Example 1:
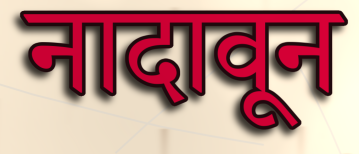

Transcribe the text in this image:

नादावून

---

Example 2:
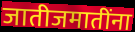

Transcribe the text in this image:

जातीजमातींना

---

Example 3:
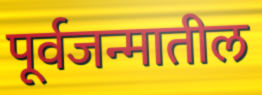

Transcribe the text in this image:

पूर्वजन्मातील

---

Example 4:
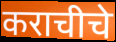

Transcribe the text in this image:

कराचीचे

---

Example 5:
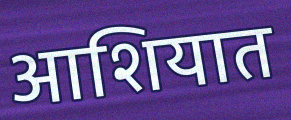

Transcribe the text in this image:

आशियात